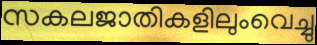
സകലജാതികളിലുംവെച്ചു